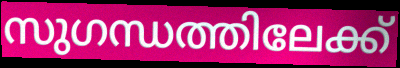
സുഗന്ധത്തിലേക്ക്